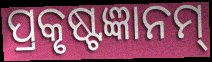
ପ୍ରକୃଷ୍ଟଜ୍ଞାନମ୍